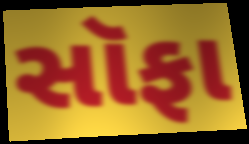
સૉફા